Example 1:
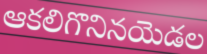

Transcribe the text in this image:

ఆకలిగొనినయెడల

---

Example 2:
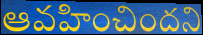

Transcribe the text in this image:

ఆవహించిందని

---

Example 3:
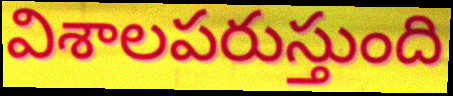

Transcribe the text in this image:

విశాలపరుస్తుంది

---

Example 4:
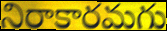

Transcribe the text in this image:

నిరాకారమగు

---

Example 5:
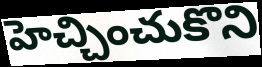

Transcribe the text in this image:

హెచ్చించుకొని